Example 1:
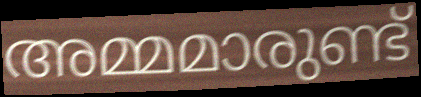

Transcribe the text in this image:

അമ്മമാരുണ്ട്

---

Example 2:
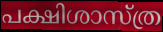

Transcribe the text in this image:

പക്ഷിശാസ്ത്ര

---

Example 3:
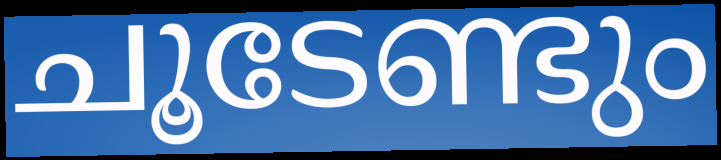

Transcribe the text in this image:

ചൂടേണ്ടും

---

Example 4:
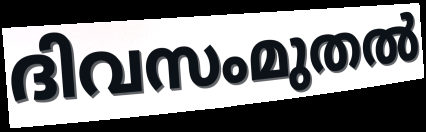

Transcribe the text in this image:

ദിവസംമുതൽ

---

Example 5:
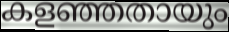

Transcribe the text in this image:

കളഞ്ഞതായും